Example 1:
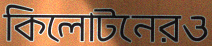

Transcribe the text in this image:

কিলোটনেরও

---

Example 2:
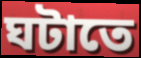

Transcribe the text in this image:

ঘটাতে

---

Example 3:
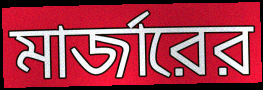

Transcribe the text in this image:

মার্জারের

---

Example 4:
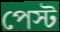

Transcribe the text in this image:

পেস্ট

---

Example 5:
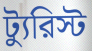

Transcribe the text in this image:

ট্যুরিস্ট